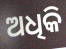
ଅଧିକି